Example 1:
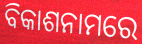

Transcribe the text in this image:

ବିକାଶନାମରେ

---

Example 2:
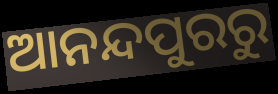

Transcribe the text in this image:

ଆନନ୍ଦପୁରରୁ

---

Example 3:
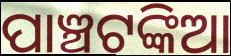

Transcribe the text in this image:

ପାଞ୍ଚଟଙ୍କିଆ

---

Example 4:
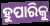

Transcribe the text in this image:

ହୁପାରିକୁ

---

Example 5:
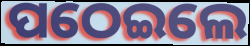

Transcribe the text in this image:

ପଠେଇଲେ